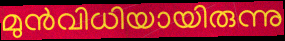
മുൻവിധിയായിരുന്നു